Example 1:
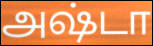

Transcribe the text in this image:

அஷ்டா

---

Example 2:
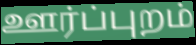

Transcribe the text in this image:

ஊர்ப்புறம்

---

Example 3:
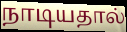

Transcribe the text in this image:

நாடியதால்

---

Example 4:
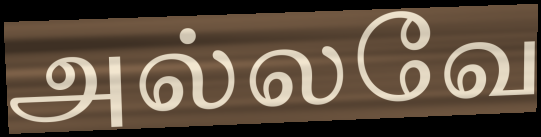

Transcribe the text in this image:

அல்லவே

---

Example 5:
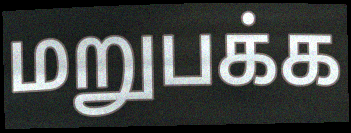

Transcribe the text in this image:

மறுபக்க